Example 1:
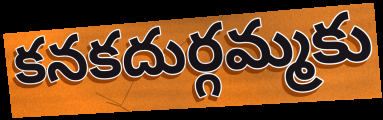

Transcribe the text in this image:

కనకదుర్గమ్మకు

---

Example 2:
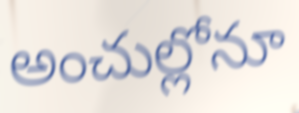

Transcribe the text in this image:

అంచుల్లోనూ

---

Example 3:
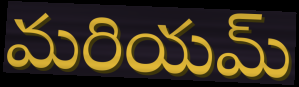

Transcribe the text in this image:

మరియమ్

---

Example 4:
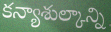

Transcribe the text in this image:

కన్యాశుల్కాన్ని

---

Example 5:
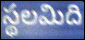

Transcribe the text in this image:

స్థలమిది